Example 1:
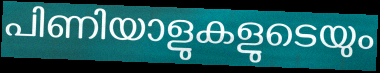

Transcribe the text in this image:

പിണിയാളുകളുടെയും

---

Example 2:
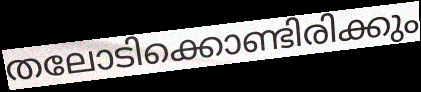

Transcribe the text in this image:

തലോടിക്കൊണ്ടിരിക്കും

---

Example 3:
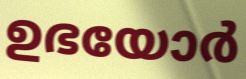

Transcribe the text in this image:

ഉഭയോർ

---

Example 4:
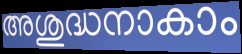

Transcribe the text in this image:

അശുദ്ധനാകാം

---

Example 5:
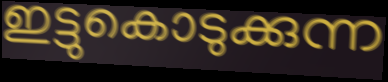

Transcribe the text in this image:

ഇട്ടുകൊടുക്കുന്ന